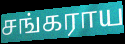
சங்கராய